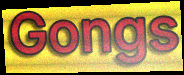
Gongs